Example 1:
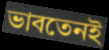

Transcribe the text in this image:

ভাবতেনই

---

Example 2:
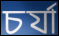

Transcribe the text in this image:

চর্যা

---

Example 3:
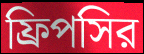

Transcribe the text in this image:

ফ্রিপসির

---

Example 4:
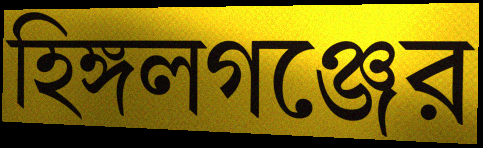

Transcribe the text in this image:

হিঙ্গলগঞ্জের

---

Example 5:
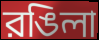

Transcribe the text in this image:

রঙিলা